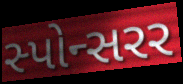
સ્પોન્સરર